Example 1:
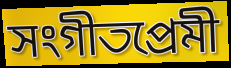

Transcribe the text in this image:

সংগীতপ্রেমী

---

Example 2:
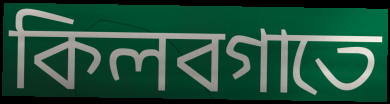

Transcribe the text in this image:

কিলবগাতে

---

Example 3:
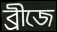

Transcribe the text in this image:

ব্রীজে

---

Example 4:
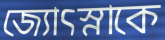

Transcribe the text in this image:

জ্যোৎস্নাকে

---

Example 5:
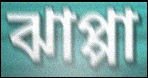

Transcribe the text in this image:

ঝাপ্পা